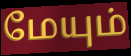
மேயும்